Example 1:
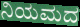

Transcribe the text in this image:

ನಿಯಮದ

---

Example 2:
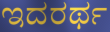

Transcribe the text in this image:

ಇದರರ್ಥ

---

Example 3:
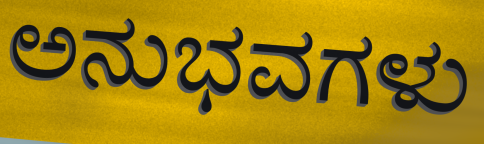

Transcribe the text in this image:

ಅನುಭವಗಳು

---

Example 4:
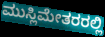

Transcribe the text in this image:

ಮುಸ್ಲಿಮೇತರರಲ್ಲಿ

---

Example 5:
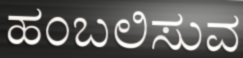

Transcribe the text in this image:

ಹಂಬಲಿಸುವ